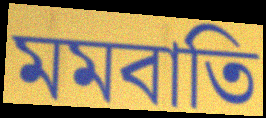
মমবাতি